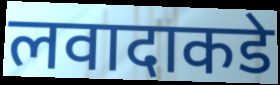
लवादाकडे